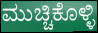
ಮುಚ್ಚಿಕೊಳ್ಳಿ